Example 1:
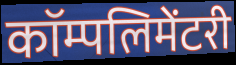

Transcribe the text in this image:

कॉम्पलिमेंटरी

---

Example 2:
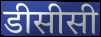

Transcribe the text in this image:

डीसीसी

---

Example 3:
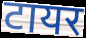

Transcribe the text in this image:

टायर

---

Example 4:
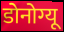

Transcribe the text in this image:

डोनोग्यू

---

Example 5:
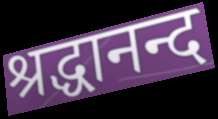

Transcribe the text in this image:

श्रद्धानन्द